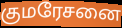
குமரேசனை